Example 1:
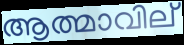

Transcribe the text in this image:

ആത്മാവില്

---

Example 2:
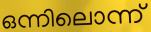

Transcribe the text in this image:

ഒന്നിലൊന്ന്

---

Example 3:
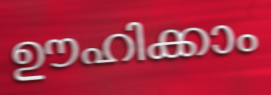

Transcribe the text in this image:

ഊഹിക്കാം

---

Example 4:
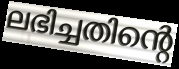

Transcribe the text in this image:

ലഭിച്ചതിന്റെ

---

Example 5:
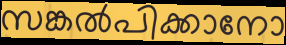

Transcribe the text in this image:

സങ്കൽപിക്കാനോ